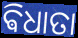
ଵିଧାତା